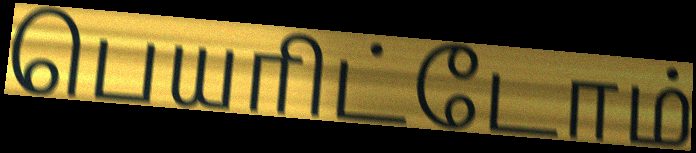
பெயரிட்டோம்